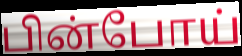
பின்போய்